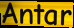
Antar